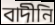
বাদীনি